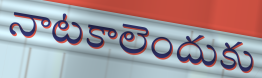
నాటకాలెందుకు